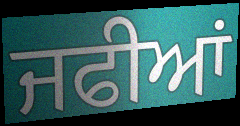
ਜਫੀਆਂ